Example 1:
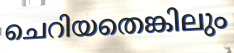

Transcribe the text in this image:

ചെറിയതെങ്കിലും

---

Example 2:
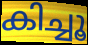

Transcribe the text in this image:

കിച്ചൂ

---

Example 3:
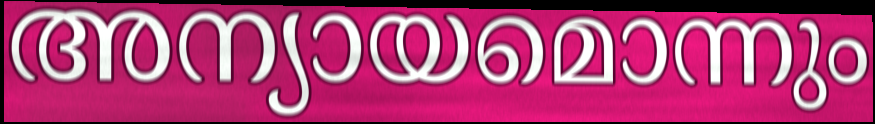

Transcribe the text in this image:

അന്യായമൊന്നും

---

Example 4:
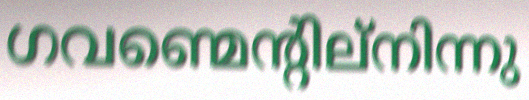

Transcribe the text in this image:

ഗവണ്മെന്റില്നിന്നു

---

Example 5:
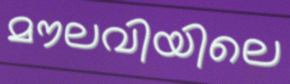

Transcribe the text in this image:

മൗലവിയിലെ